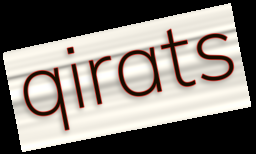
qirats